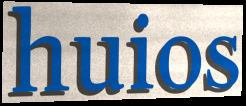
huios